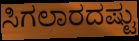
ಸಿಗಲಾರದಷ್ಟು